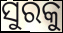
ସୁରକୁ